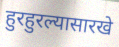
हुरहुरल्यासारखे